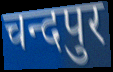
चन्दपुर